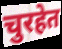
चुरहेत